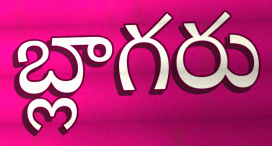
బ్లాగరు